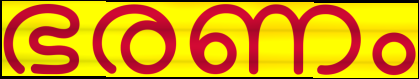
ഭരണം